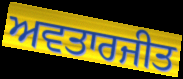
ਅਵਤਾਰਜੀਤ